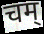
चम्